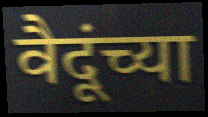
वैदूंच्या